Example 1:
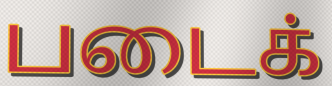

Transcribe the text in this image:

படைக்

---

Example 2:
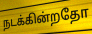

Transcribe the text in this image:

நடக்கின்றதோ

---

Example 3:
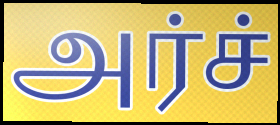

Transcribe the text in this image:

அர்ச்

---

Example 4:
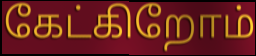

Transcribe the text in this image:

கேட்கிறோம்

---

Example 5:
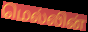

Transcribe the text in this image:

மெல்லின்